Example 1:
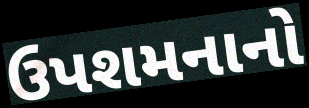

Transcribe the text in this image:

ઉપશમનાનો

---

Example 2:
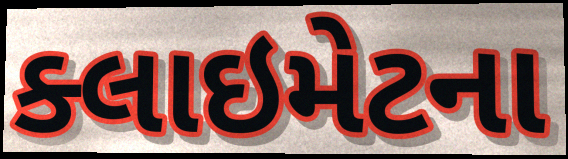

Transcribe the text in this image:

ક્લાઇમેટના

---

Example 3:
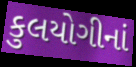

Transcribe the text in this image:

કુલયોગીનાં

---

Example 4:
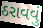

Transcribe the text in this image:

ઠરાવવું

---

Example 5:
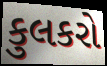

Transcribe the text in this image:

કુલકરો